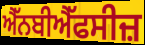
ਐੱਨਬੀਐੱਫਸੀਜ਼